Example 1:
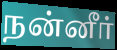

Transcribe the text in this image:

நன்னீர்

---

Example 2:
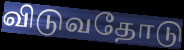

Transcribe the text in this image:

விடுவதோடு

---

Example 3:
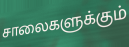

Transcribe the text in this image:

சாலைகளுக்கும்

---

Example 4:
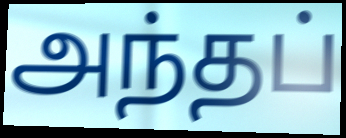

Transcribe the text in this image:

அந்தப்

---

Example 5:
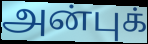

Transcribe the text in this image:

அன்புக்